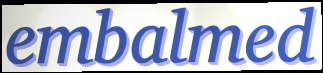
embalmed